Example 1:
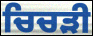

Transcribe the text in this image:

ਚਿਚੜੀ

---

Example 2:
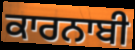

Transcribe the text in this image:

ਕਾਰਨਾਬੀ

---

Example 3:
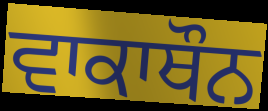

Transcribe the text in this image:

ਵਾਕਾਥੌਨ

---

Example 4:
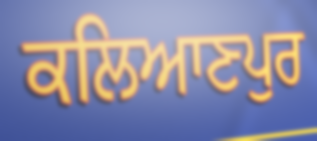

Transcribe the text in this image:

ਕਲਿਆਣਪੁਰ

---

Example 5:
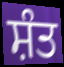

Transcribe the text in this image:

ਸ਼ੰਤ